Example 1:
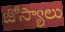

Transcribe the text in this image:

జోస్యాలు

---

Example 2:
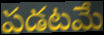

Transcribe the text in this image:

పడటమే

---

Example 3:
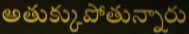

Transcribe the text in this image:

అతుక్కుపోతున్నారు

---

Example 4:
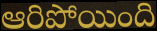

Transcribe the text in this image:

ఆరిపోయింది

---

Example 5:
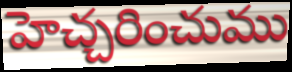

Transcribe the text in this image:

హెచ్చరించుము